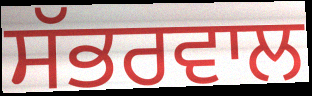
ਸੱਭਰਵਾਲ